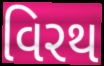
વિરથ